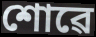
শোৱে